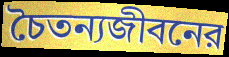
চৈতন্যজীবনের